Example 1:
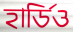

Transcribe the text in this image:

হার্ডিও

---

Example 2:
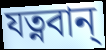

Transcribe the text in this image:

যত্নবান্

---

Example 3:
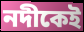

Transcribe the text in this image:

নদীকেই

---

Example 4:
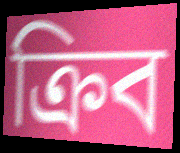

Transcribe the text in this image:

ক্রিব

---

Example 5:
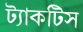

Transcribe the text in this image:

ট্যাকটিস